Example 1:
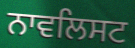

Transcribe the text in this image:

ਨਾਵਲਿਸਟ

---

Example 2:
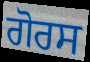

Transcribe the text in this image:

ਗੋਰਸ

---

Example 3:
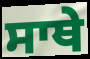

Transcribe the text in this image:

ਸਾਥੇ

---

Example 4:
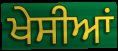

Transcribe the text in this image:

ਖੇਸੀਆਂ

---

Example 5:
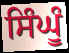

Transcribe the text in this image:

ਸਿੰਘੂੰ